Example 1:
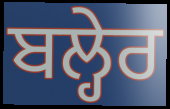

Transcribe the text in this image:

ਬਲ੍ਹੇਰ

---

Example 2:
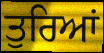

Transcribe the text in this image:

ਤੁਰਿਆਂ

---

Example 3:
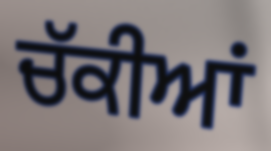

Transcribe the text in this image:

ਚੱਕੀਆਂ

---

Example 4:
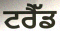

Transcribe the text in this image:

ਟਰੈੱਡ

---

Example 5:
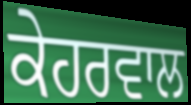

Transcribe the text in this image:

ਕੇਹਰਵਾਲ